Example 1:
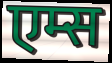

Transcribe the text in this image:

एम्स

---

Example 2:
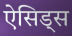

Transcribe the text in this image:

ऐसिड्स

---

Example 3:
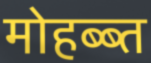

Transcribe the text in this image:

मोहब्ब्त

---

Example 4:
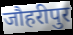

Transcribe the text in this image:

जौहरीपुर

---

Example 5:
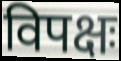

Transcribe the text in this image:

विपक्षः